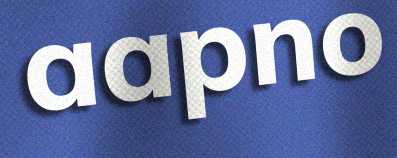
aapno